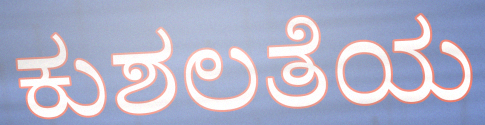
ಕುಶಲತೆಯ